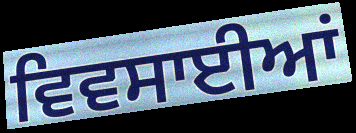
ਵਿਵਸਾਈਆਂ